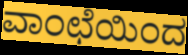
ವಾಂಛೆಯಿಂದ